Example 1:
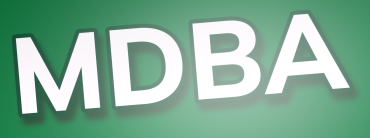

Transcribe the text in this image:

MDBA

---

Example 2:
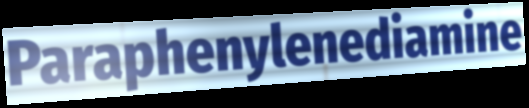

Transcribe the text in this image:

Paraphenylenediamine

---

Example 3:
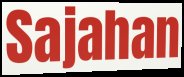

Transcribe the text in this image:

Sajahan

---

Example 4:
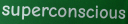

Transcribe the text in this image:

superconscious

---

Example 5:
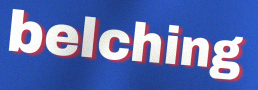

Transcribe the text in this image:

belching